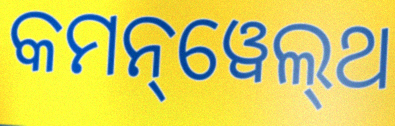
କମନ୍‌ୱେଲ୍‌ଥ